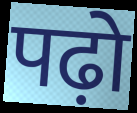
पढ़ो